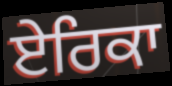
ਏਰਿਕਾ